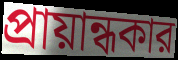
প্রায়ান্ধকার